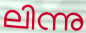
ലിന്നു